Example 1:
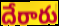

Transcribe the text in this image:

దేరారు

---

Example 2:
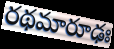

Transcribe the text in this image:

రథమారూఢః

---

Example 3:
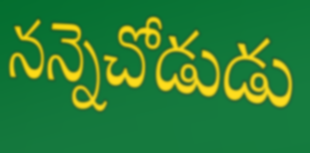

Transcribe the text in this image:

నన్నెచోడుడు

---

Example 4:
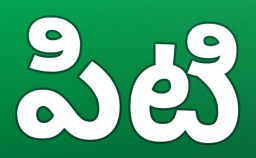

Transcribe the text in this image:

పిటి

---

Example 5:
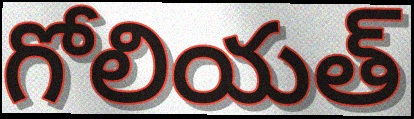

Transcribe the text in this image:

గోలియత్